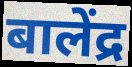
बालेंद्र